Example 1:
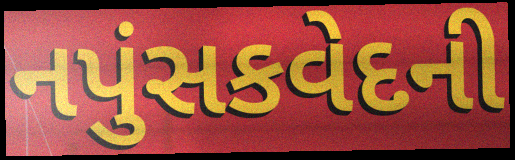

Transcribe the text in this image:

નપુંસકવેદની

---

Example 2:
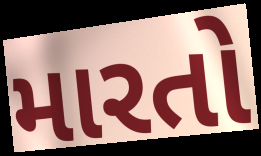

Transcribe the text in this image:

મારતો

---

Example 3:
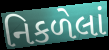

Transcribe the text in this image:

નિકળેલાં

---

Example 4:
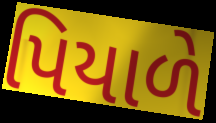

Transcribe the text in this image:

પિયાળે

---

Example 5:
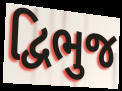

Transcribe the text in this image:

દ્વિભુજ